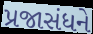
પ્રજાસંધને